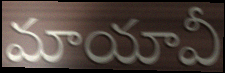
మాయావీ